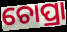
ଚୋପ୍ରା